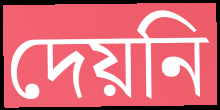
দেয়নি